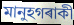
মানুহগৰাকী